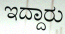
ಇದ್ದಾರು